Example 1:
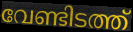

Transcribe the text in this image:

വേണ്ടിടത്ത്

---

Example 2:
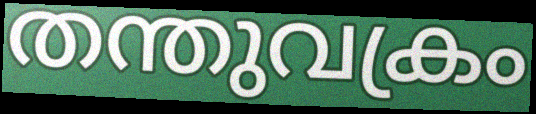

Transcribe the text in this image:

തന്തുവക്രം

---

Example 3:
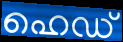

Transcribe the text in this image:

ഹെഡ്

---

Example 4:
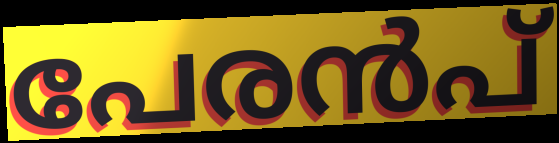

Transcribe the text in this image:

പേരൻപ്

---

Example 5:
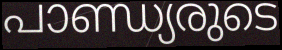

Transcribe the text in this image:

പാണ്ഡ്യരുടെ